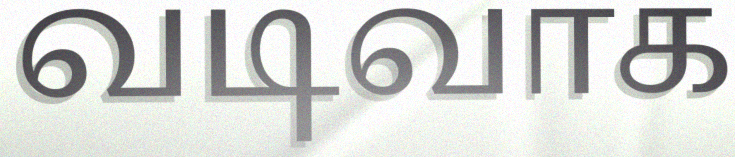
வடிவாக